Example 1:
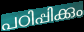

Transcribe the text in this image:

പഠിപ്പിക്കും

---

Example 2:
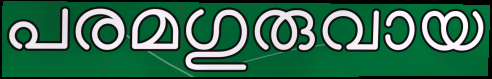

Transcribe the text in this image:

പരമഗുരുവായ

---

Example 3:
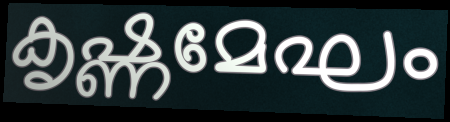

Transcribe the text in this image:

കൃഷ്ണമേഘം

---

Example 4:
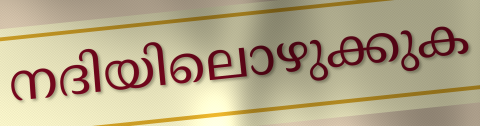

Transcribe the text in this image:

നദിയിലൊഴുക്കുക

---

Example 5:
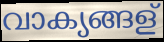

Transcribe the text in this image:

വാക്യങ്ങള്